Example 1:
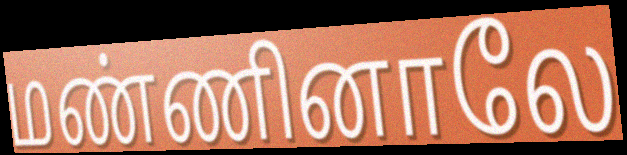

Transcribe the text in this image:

மண்ணினாலே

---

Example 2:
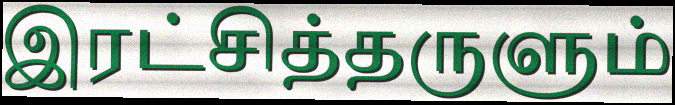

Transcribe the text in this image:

இரட்சித்தருளும்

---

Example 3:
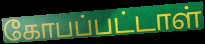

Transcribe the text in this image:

கோபப்பட்டாள்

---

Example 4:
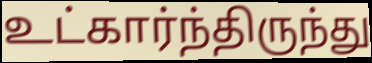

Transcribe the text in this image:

உட்கார்ந்திருந்து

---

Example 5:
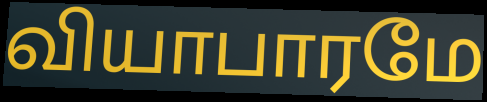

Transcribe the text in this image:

வியாபாரமே